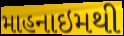
માહનાઇમથી